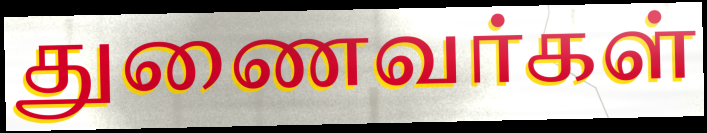
துணைவர்கள்